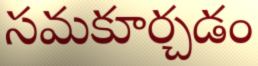
సమకూర్చడం